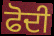
ਫੋਦੀ